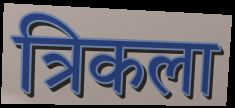
त्रिकला